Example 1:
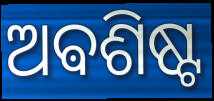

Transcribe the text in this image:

ଅଵଶିଷ୍ଟ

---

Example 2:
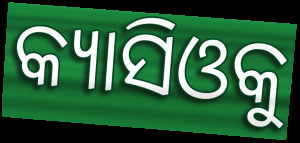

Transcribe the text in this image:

କ୍ୟାସିଓକୁ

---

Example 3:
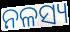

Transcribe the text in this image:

ନଳସ୍ୟ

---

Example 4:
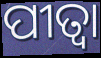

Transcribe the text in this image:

ପୀତ୍ବା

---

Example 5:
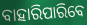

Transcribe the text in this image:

ବାହାରିପାରିବେ